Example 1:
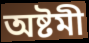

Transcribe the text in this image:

অষ্টমী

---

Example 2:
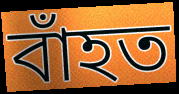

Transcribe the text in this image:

বাঁহত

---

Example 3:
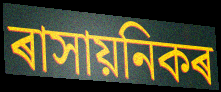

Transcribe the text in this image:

ৰাসায়নিকৰ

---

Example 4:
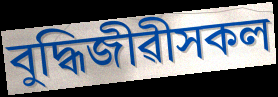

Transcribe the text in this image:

বুদ্ধিজীৱীসকল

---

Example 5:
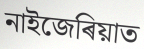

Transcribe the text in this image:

নাইজেৰিয়াত